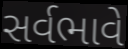
સર્વભાવે